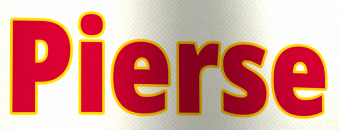
Pierse